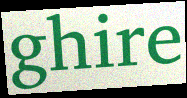
ghire